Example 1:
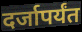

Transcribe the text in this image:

दर्जापर्यंत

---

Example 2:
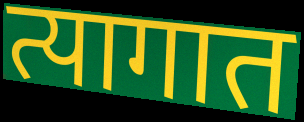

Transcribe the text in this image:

त्यागात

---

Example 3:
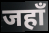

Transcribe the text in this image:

जहाँ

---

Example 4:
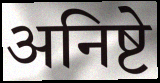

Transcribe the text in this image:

अनिष्टे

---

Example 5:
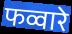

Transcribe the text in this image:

फव्वारे